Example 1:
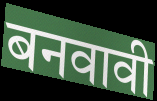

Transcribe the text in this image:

बनवावी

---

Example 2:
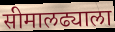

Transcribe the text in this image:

सीमालढ्याला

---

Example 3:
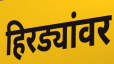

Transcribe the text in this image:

हिरड्यांवर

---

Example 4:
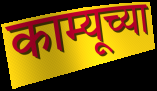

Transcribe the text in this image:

काम्यूच्या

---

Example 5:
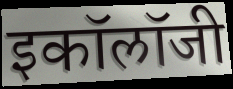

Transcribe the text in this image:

इकॉलॉजी